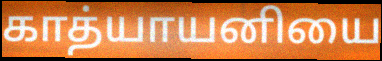
காத்யாயனியை